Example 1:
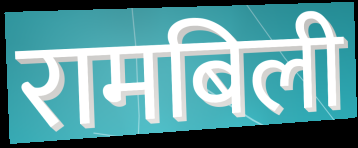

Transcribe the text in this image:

रामबिली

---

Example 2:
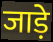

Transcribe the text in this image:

जाड़े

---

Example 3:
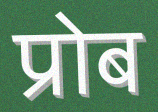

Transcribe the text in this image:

प्रोब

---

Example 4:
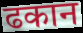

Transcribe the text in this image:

ढकान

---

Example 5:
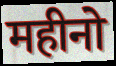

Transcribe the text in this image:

महीनो